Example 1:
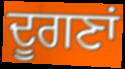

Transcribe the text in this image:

ਦੂਗਣਾਂ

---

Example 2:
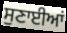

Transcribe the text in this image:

ਸੁਣਾਈਆਂ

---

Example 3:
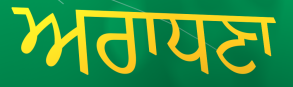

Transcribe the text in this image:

ਅਰਾਧਣਾ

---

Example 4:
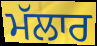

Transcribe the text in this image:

ਮੱਲਾਰ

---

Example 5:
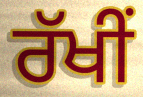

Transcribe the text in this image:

ਰੱਖੀਂ